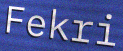
Fekri